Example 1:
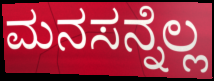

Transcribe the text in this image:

ಮನಸನ್ನೆಲ್ಲ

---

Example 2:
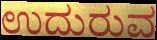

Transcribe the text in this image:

ಉದುರುವ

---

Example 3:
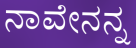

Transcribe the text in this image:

ನಾವೇನನ್ನ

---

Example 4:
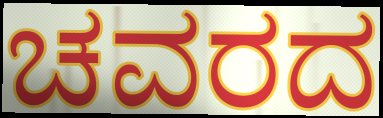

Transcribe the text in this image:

ಚವರದ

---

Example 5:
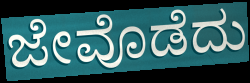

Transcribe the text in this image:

ಜೇವೊಡೆದು